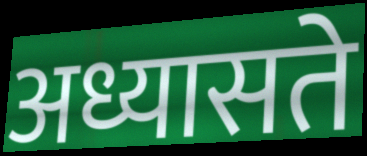
अध्यासते